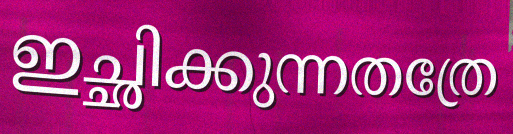
ഇച്ഛിക്കുന്നതത്രേ